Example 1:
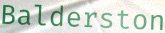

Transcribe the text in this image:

Balderston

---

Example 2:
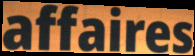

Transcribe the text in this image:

affaires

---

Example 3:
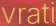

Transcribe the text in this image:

vrati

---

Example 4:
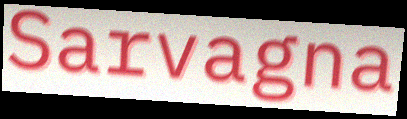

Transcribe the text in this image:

Sarvagna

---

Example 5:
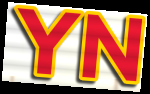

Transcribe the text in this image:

YN